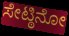
ಸೇಟ್ಠಿನೋ